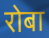
रोबा